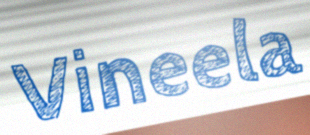
Vineela